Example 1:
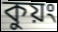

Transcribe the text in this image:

কুয়ং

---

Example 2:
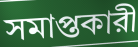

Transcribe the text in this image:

সমাপ্তকারী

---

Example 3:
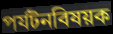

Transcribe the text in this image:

পর্যটনবিষয়ক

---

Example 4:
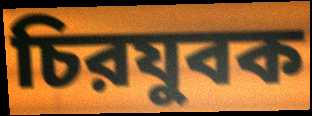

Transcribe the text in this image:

চিরযুবক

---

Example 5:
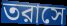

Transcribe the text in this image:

তরাসে